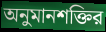
অনুমানশক্তির